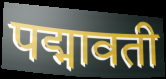
पद्मावती